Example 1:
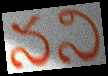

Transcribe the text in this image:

నని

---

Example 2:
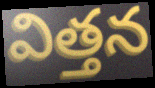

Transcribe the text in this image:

విత్తన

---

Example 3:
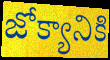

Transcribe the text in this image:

జోక్యానికి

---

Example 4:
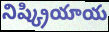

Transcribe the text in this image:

నిష్క్రియాయ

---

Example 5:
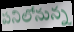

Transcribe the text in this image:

పనిలోనున్న